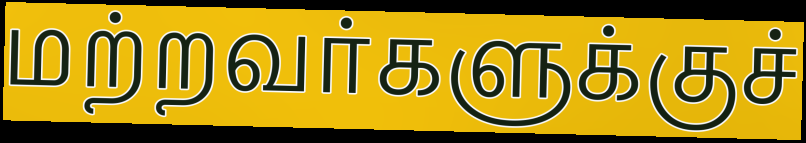
மற்றவர்களுக்குச்